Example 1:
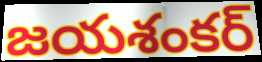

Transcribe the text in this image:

జయశంకర్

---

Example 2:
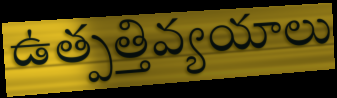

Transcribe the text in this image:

ఉత్పత్తివ్యయాలు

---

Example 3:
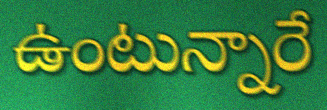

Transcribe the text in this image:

ఉంటున్నారే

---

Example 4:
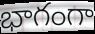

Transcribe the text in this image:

భాగంగా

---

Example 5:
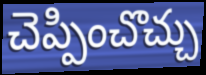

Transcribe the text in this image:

చెప్పించొచ్చు